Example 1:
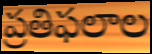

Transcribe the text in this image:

ప్రతిఫలాల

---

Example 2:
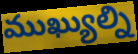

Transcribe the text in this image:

ముఖ్యుల్ని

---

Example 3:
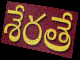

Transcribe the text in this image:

శేరతే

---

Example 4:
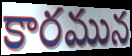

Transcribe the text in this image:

కారమున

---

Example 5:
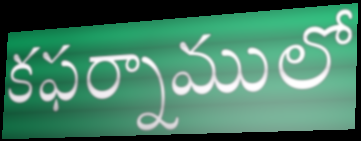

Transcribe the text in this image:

కఫర్నాములో